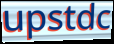
upstdc